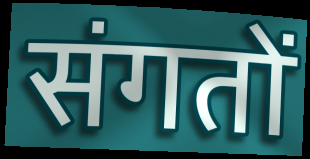
संगतों